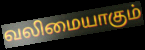
வலிமையாகும்